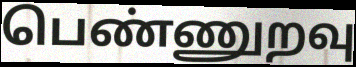
பெண்ணுறவு